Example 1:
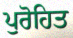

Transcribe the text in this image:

ਪੁਰੋਹਿਤ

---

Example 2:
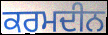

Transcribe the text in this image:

ਕਰਮਦੀਨ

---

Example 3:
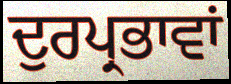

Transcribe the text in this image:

ਦੁਰਪ੍ਰਭਾਵਾਂ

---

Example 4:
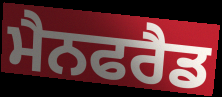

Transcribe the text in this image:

ਮੈਨਫਰੈਡ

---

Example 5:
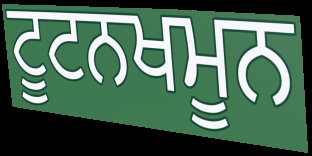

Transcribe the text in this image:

ਟੂਟਨਖਮੂਨ